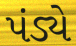
પંડ્યે